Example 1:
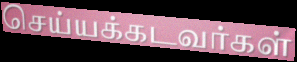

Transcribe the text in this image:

செய்யக்கடவர்கள்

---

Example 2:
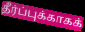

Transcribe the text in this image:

தீர்ப்புக்காகக்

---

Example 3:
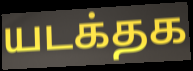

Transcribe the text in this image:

யடக்தக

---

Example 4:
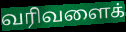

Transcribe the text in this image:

வரிவளைக்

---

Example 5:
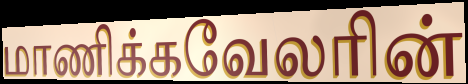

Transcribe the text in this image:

மாணிக்கவேலரின்